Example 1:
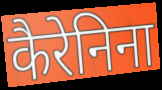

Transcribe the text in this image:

कैरेनिना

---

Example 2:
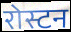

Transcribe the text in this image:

रोस्टन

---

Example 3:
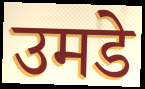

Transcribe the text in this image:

उमडे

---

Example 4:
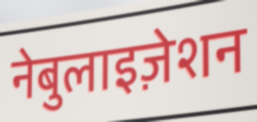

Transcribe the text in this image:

नेबुलाइज़ेशन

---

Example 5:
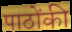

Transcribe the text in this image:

पाठोंकी